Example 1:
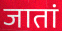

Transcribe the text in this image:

जातां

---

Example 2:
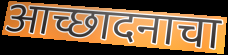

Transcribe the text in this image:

आच्छादनाचा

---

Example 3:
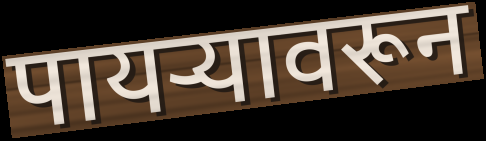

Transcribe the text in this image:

पायऱ्यावरून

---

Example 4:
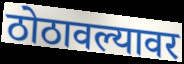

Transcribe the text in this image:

ठोठावल्यावर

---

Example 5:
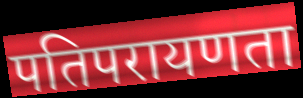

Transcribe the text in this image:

पतिपरायणता